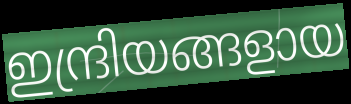
ഇന്ദ്രിയങ്ങളായ